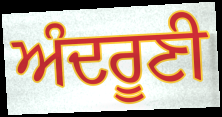
ਅੰਦਰੂਣੀ